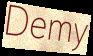
Demy